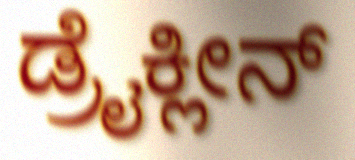
ಡ್ರೈಕ್ಲೀನ್